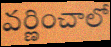
వర్ణించాలో